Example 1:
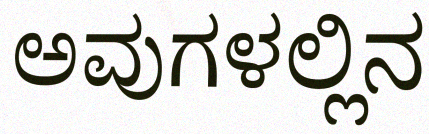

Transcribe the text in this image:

ಅವುಗಳಲ್ಲಿನ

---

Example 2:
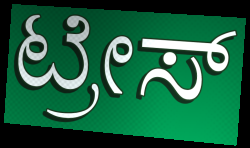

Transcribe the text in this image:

ಟ್ರೇಸ್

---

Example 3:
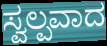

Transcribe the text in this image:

ಸ್ವಲ್ಪವಾದ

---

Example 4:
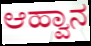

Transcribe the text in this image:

ಆಹ್ವಾನ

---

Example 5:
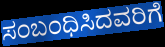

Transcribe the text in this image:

ಸಂಬಂಧಿಸಿದವರಿಗೆ